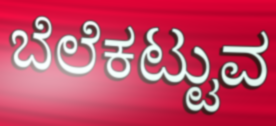
ಬೆಲೆಕಟ್ಟುವ